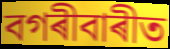
বগৰীবাৰীত